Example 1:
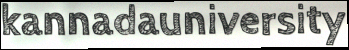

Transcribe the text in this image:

kannadauniversity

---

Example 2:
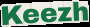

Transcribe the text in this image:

Keezh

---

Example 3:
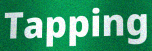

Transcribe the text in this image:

Tapping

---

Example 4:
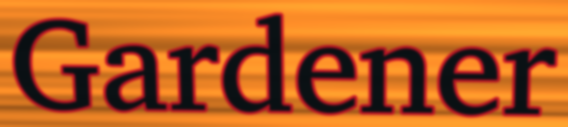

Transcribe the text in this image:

Gardener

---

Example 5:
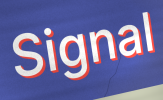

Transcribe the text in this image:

Signal